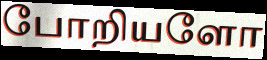
போறியளோ